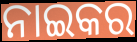
ନାଇକର